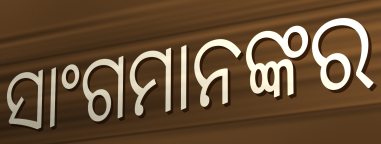
ସାଂଗମାନଙ୍କର